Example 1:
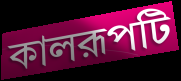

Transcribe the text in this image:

কালরূপটি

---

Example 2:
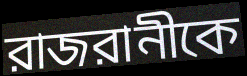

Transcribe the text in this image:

রাজরানীকে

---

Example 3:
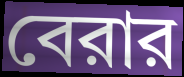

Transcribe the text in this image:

বেরার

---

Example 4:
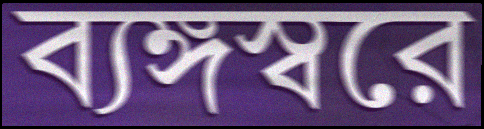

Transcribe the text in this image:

ব্যঙ্গস্বরে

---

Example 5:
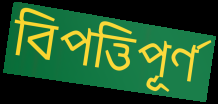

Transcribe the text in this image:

বিপত্তিপূর্ণ